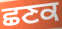
ਛਣਕ